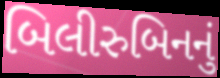
બિલીરુબિનનું